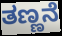
ತಣ್ಣನೆ